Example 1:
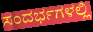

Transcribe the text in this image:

ಸಂದರ್ಭಗಳಲ್ಲಿ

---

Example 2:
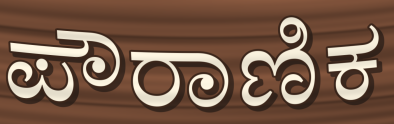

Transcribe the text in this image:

ಪೌರಾಣಿಕ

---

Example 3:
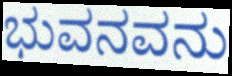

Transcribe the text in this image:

ಭುವನವನು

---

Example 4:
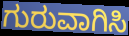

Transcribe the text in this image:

ಗುರುವಾಗಿಸಿ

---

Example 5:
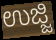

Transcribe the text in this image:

ಉಜ್ಜಿ